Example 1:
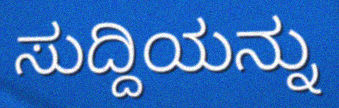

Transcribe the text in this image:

ಸುದ್ದಿಯನ್ನು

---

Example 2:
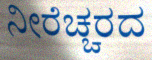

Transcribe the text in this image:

ನೀರೆಚ್ಚರದ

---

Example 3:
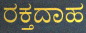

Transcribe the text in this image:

ರಕ್ತದಾಹ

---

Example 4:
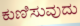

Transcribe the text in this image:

ಕುಣಿಸುವುದು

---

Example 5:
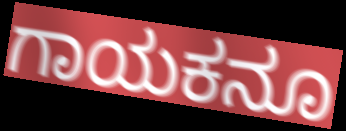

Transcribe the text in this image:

ಗಾಯಕನೂ